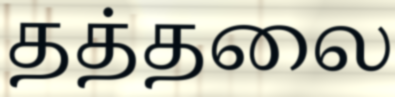
தத்தலை